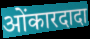
ओंकारदादा